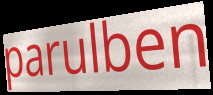
parulben